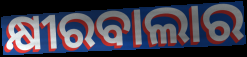
କ୍ଷୀରବାଲାର